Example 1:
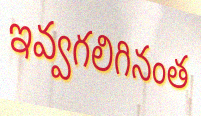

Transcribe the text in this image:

ఇవ్వగలిగినంత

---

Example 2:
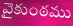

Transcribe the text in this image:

వైకుంఠము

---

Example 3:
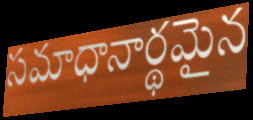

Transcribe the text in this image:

సమాధానార్థమైన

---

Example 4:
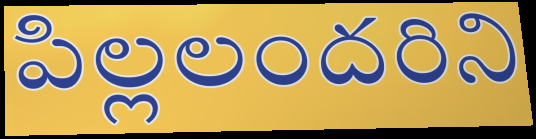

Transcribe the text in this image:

పిల్లలందరిని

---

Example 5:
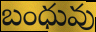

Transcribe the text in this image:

బంధువు